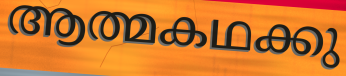
ആത്മകഥക്കു